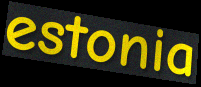
estonia